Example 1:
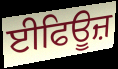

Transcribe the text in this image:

ਈਫਿਊਜ਼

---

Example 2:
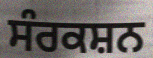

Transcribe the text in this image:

ਸੰਰਕਸ਼ਨ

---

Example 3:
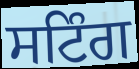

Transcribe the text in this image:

ਸਟਿੰਗ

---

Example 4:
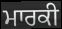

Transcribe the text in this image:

ਮਾਰਕੀ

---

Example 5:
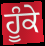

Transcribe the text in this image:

ਹੂੰਕੇ